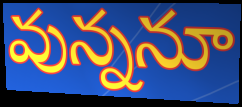
వున్ననూ